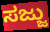
ಸಜ್ಜು